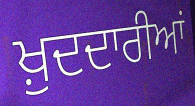
ਖ਼ੁਦਦਾਰੀਆਂ